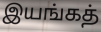
இயங்கத்